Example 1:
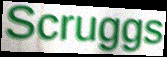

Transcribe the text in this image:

Scruggs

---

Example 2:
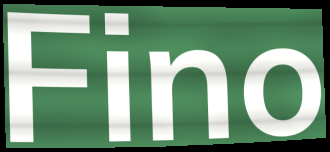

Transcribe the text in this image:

Fino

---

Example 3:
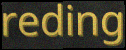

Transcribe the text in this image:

reding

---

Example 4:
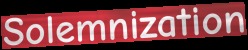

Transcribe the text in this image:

Solemnization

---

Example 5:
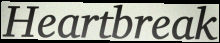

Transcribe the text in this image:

Heartbreak